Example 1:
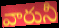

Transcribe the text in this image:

వారునీ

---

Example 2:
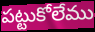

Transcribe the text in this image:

పట్టుకోలేము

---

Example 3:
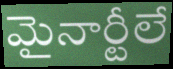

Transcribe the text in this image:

మైనార్టీలే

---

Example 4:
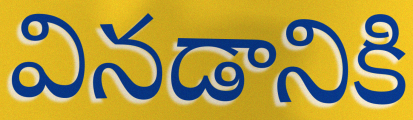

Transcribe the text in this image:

వినడానికి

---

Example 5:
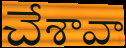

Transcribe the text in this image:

చేశావా